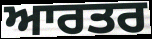
ਆਰਤਰ